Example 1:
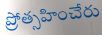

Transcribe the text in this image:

ప్రోత్సహించేరు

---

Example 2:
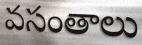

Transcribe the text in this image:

వసంతాలు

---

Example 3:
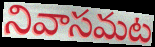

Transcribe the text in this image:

నివాసమట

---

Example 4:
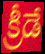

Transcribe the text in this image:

క్రీడే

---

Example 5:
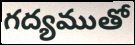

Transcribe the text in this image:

గద్యముతో